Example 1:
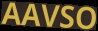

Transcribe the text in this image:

AAVSO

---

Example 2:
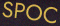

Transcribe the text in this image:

SPOC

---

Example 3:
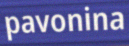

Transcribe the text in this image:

pavonina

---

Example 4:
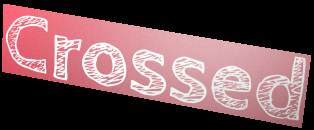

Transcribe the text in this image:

Crossed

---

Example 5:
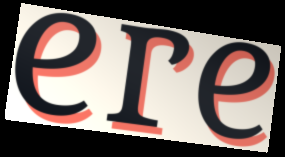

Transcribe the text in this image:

ere